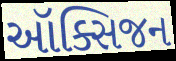
ઑક્સિજન